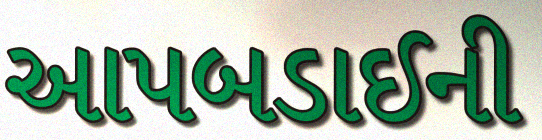
આપબડાઈની